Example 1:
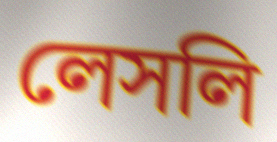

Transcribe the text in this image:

লেসলি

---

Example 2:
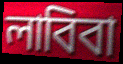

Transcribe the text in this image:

লাবিবা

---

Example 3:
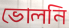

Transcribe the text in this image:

ভোলনি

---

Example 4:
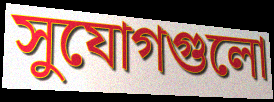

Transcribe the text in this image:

সুযোগগুলো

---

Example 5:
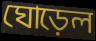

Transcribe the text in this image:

ঘোড়েল